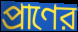
প্রাণের